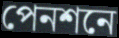
পেনশনে